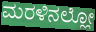
ಮರಳಿನಲ್ಲೋ